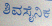
ಶಿವಸೈನಿಕ